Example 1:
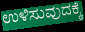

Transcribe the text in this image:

ಉಳಿಸುವುದಕ್ಕೆ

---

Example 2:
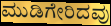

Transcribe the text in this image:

ಮುಡಿಗೇರಿದವು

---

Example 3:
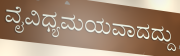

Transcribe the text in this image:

ವೈವಿಧ್ಯಮಯವಾದದ್ದು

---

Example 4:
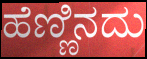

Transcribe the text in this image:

ಹೆಣ್ಣಿನದು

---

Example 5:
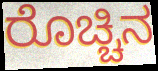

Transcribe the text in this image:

ರೊಚ್ಚಿನ